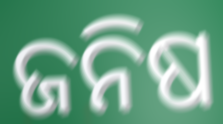
ଜନିଷ